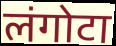
लंगोटा